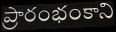
ప్రారంభంకాని